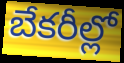
బేకరీల్లో